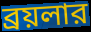
ব্রয়লার